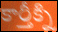
కార్తీక్ని